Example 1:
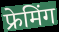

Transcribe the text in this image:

फ्रेमिंग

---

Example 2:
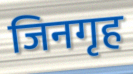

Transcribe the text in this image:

जिनगृह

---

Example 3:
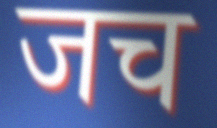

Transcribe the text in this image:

जच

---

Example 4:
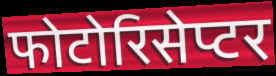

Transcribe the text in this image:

फोटोरिसेप्टर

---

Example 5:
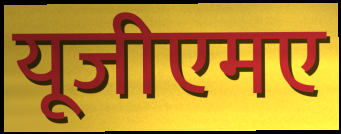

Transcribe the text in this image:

यूजीएमए